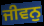
ਜੀਵਨੁ